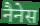
नैनेस